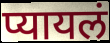
प्यायलं